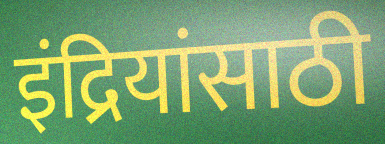
इंद्रियांसाठी